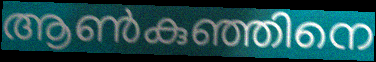
ആൺകുഞ്ഞിനെ